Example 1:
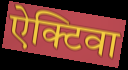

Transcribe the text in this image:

ऐक्टिवा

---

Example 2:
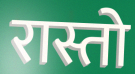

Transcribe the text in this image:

रास्तो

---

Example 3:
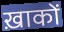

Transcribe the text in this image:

ख़ाकों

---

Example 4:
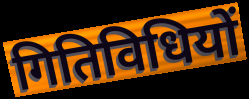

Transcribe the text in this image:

गितिविधियों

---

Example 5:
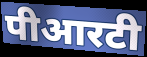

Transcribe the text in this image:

पीआरटी